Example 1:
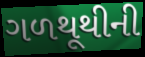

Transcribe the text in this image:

ગળથૂથીની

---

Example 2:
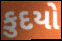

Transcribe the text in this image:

કુદયો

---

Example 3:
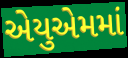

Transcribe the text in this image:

એયુએમમાં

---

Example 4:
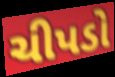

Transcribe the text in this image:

ચીપડો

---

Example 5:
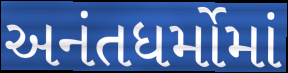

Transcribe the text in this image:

અનંતધર્મોમાં